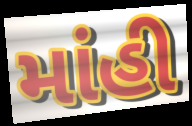
માંહી